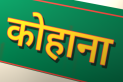
कोहाना